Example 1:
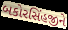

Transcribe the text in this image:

બકોરસિંહજીને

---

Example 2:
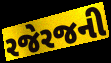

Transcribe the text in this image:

રજેરજની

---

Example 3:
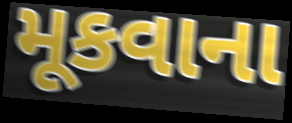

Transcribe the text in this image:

મૂકવાના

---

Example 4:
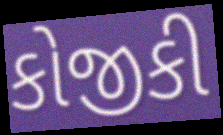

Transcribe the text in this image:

કોજીકી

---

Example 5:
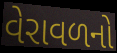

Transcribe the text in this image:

વેરાવળનો